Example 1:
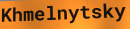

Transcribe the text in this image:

Khmelnytsky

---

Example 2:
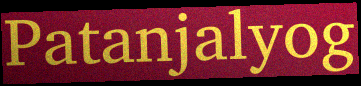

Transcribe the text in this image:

Patanjalyog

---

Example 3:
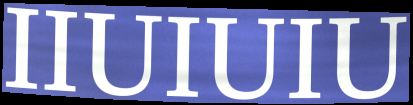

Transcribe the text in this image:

IIUIUIU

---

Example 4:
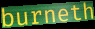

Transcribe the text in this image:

burneth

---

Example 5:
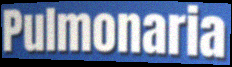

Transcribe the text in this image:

Pulmonaria